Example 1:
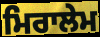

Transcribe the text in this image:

ਮਿਰਾਲੇਮ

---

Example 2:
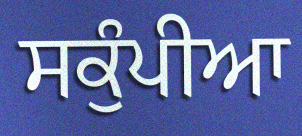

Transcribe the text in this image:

ਸਕੁੰਪੀਆ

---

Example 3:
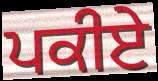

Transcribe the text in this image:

ਪਕੀਏ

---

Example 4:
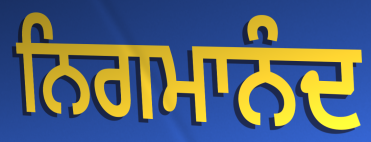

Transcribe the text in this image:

ਨਿਗਮਾਨੰਦ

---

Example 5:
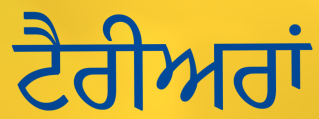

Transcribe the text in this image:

ਟੈਰੀਅਰਾਂ